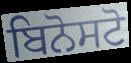
ਬਿਨੋਸਟੋ